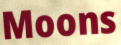
Moons